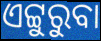
ଏଟ୍ଟୁରୁବା